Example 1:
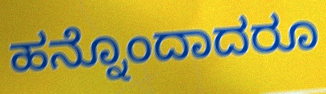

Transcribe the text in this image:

ಹನ್ನೊಂದಾದರೂ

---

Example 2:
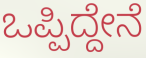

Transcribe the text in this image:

ಒಪ್ಪಿದ್ದೇನೆ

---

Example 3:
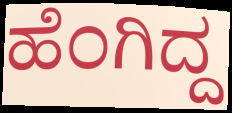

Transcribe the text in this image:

ಹೆಂಗಿದ್ದ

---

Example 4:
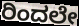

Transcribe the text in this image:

ರಿಂದಲೇ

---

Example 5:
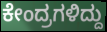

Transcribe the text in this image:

ಕೇಂದ್ರಗಳಿದ್ದು